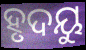
ହୃଦୟୁ